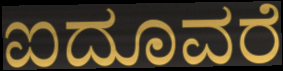
ಐದೂವರೆ